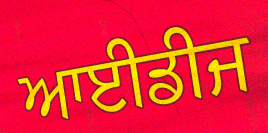
ਆਈਡੀਜ